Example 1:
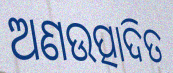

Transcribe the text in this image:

ଅଣଉତ୍ପାଦିତ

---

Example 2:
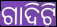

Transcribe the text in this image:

ଗାଦିଟି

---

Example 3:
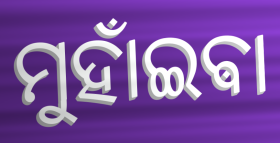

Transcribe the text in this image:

ମୁହାଁଇଵା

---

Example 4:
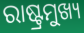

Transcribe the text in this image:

ରାଷ୍ଟ୍ରମୁଖ୍ୟ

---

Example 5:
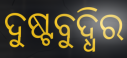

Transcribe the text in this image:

ଦୁଷ୍ଟବୁଦ୍ଧିର